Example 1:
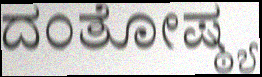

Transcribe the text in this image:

ದಂತೋಷ್ಠ್ಯ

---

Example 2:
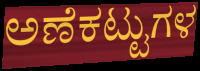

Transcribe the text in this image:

ಅಣೆಕಟ್ಟುಗಳ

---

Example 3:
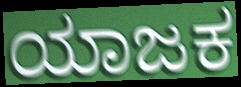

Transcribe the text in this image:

ಯಾಜಕ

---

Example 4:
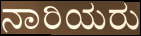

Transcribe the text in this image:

ನಾರಿಯರು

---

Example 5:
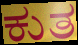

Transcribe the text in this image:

ಕುತ